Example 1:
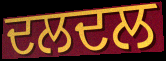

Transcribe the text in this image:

ਦਲਦਲ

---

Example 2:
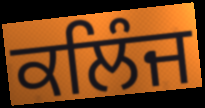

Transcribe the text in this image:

ਕਲਿੰਜ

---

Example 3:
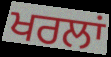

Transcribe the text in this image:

ਖਰਲਾਂ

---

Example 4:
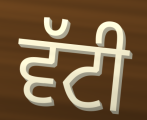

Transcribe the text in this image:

ਵੱਟੀ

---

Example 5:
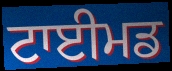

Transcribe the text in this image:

ਟਾਈਮਡ